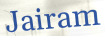
Jairam